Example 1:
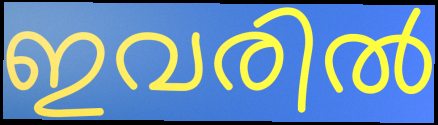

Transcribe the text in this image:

ഇവരിൽ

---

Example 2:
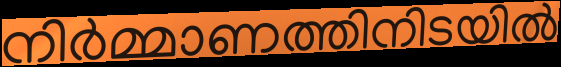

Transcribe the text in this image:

നിർമ്മാണത്തിനിടയിൽ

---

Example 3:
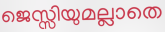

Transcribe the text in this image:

ജെസ്സിയുമല്ലാതെ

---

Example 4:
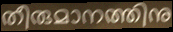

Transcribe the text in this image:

തീരുമാനത്തിനു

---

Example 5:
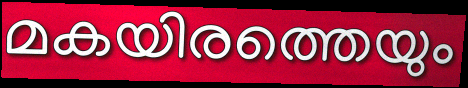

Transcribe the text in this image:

മകയിരത്തെയും